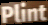
Plint